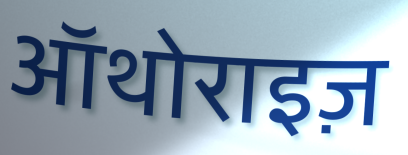
ऑथोराइज़